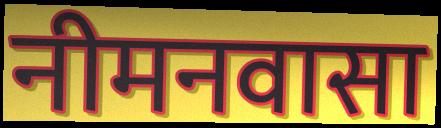
नीमनवासा